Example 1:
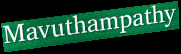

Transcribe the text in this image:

Mavuthampathy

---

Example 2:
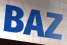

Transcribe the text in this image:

BAZ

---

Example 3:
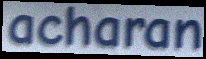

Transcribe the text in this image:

acharan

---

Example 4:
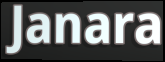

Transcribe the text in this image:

Janara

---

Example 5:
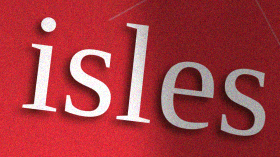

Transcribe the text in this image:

isles